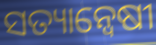
ସତ୍ୟାନ୍ଵେଷୀ